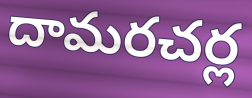
దామరచర్ల